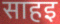
साहइ